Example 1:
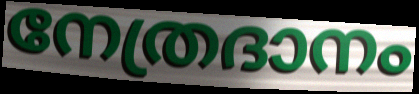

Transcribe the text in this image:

നേത്രദാനം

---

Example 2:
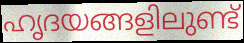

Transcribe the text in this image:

ഹൃദയങ്ങളിലുണ്ട്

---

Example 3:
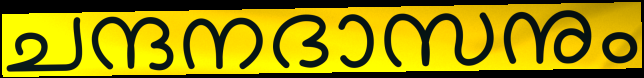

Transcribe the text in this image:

ചന്ദനദാസനും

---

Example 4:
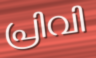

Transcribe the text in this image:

പ്രിവി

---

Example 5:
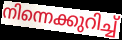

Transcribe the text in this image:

നിന്നെക്കുറിച്ച്